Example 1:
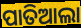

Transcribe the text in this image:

ପାତିଆଲା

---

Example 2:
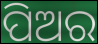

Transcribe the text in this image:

ପିଅର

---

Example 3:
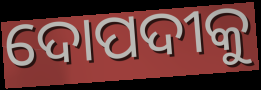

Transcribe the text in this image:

ଦୋପଦୀକୁ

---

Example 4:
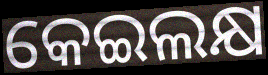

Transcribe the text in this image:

କେଇଲକ୍ଷ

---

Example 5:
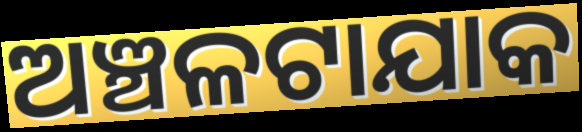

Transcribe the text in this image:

ଅଞ୍ଚଳଟାଯାକ